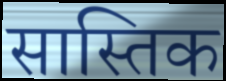
सास्तिक